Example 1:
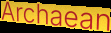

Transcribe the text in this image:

Archaean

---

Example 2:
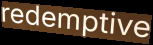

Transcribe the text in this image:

redemptive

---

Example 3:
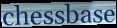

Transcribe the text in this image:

chessbase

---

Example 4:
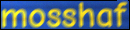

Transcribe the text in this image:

mosshaf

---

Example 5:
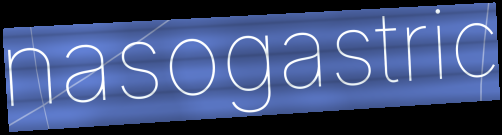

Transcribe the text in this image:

nasogastric